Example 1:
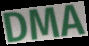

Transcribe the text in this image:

DMA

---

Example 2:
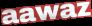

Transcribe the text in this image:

aawaz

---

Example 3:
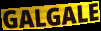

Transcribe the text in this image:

GALGALE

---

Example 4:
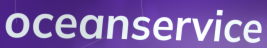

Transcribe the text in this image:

oceanservice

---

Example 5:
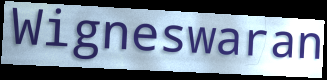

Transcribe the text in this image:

Wigneswaran